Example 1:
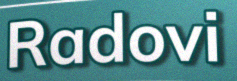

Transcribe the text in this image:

Radovi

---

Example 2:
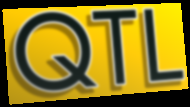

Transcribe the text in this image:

QTL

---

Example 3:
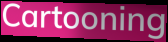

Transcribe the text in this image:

Cartooning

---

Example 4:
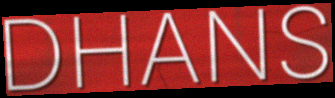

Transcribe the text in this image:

DHANS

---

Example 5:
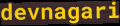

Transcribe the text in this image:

devnagari